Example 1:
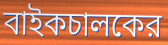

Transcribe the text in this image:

বাইকচালকের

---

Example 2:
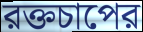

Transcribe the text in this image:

রক্তচাপের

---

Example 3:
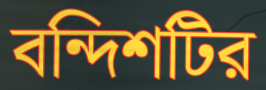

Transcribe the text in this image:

বন্দিশটির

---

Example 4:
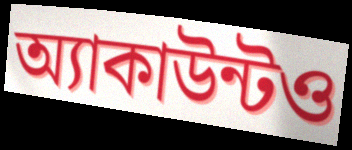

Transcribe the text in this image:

অ্যাকাউন্টও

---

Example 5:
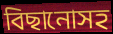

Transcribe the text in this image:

বিছানোসহ